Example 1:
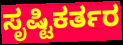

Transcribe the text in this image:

ಸೃಷ್ಟಿಕರ್ತರ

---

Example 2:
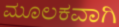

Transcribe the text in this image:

ಮೂಲಕವಾಗಿ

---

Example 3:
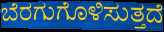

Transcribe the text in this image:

ಬೆರಗುಗೊಳಿಸುತ್ತದೆ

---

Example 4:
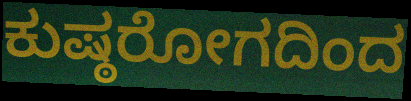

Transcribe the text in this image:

ಕುಷ್ಠರೋಗದಿಂದ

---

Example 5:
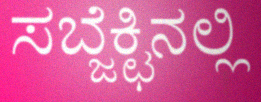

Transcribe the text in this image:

ಸಬ್ಜೆಕ್ಟಿನಲ್ಲಿ